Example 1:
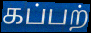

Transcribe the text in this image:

கப்பற்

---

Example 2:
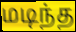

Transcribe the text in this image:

மடிந்த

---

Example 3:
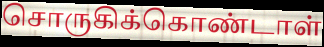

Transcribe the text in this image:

சொருகிக்கொண்டாள்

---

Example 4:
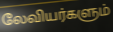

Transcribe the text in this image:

லேவியர்களும்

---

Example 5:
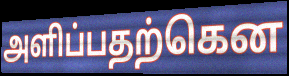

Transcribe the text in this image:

அளிப்பதற்கென